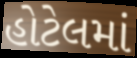
હોટેલમાં